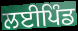
ਲਈਪਿੰਡ